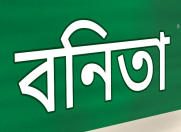
বনিতা